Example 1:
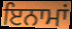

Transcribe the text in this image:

ਇਨਾਮਾਂ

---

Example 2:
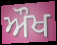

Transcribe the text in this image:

ਔਖ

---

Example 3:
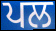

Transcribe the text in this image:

ਪਲ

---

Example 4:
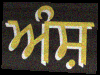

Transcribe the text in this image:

ਅੰਸ਼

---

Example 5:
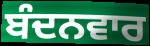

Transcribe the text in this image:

ਬੰਦਨਵਾਰ